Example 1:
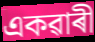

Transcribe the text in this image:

একৱাৰী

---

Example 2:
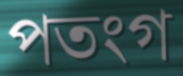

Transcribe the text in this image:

পতংগ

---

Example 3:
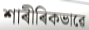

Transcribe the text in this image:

শাৰীৰিকভাৱে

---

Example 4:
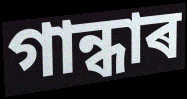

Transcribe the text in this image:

গান্ধাৰ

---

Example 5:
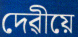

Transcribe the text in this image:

দেৱীয়ে